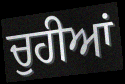
ਚੁਹੀਆਂ